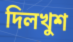
দিলখুশ